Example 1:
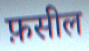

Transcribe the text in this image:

फ़सील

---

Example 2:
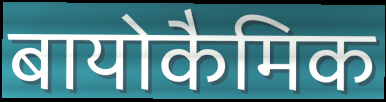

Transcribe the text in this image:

बायोकैमिक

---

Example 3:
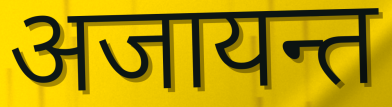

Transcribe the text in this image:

अजायन्त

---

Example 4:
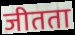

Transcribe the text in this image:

जीतता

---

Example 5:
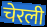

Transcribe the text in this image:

चेरली